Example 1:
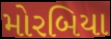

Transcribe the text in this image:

મોરબિયા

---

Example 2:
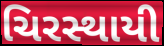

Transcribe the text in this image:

ચિરસ્થાયી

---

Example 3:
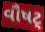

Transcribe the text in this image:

વૌષટ્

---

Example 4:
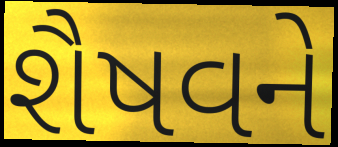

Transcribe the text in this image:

શૈષવને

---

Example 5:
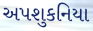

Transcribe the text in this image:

અપશુકનિયા